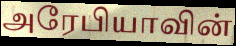
அரேபியாவின்